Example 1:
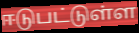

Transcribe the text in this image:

ஈடுபட்டுள்ள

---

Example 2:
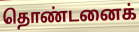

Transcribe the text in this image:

தொண்டனைக்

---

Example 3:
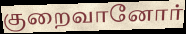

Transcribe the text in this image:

குறைவானோர்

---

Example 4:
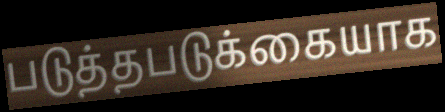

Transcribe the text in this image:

படுத்தபடுக்கையாக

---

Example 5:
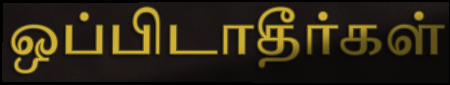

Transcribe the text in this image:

ஒப்பிடாதீர்கள்